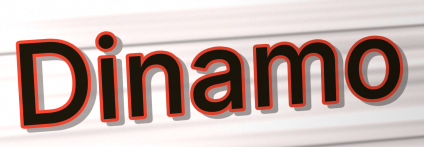
Dinamo